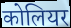
कोलियर